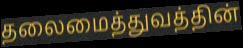
தலைமைத்துவத்தின்